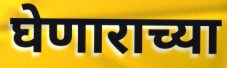
घेणाराच्या